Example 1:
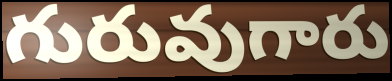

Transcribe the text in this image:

గురువుగారు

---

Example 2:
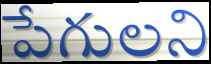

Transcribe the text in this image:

పేగులని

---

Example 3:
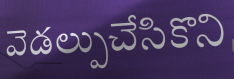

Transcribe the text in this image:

వెడల్పుచేసికొని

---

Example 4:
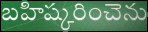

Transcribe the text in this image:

బహిష్కరించెను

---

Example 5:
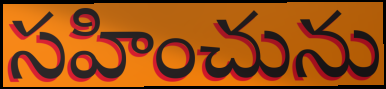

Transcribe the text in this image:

సహించును